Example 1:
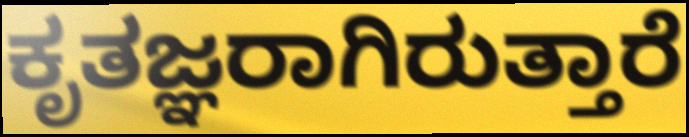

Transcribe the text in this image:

ಕೃತಜ್ಞರಾಗಿರುತ್ತಾರೆ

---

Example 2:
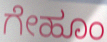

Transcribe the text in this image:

ಗೇಹೂಂ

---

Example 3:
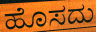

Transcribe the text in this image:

ಹೊಸದು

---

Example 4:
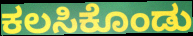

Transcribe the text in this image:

ಕಲಸಿಕೊಂಡು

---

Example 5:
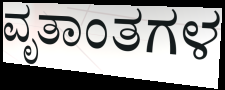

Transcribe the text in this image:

ವೃತಾಂತಗಳ